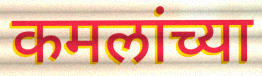
कमलांच्या